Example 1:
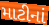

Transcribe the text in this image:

માટીનાં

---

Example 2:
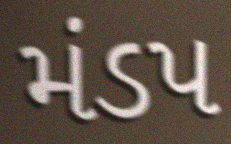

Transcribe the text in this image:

મંડપ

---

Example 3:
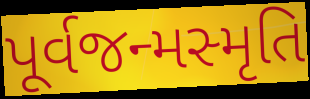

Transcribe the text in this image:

પૂર્વજન્મસ્મૃતિ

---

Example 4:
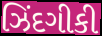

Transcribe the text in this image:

ઝિંદગીકી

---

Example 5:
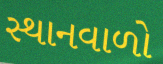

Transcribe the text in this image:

સ્થાનવાળો